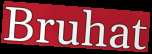
Bruhat